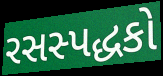
રસસ્પદ્ધકો